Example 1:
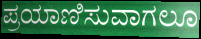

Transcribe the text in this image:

ಪ್ರಯಾಣಿಸುವಾಗಲೂ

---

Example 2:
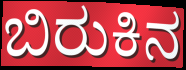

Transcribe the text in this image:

ಬಿರುಕಿನ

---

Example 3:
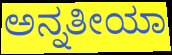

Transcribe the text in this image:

ಅನ್ನತೀಯಾ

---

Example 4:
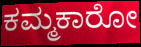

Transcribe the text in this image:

ಕಮ್ಮಕಾರೋ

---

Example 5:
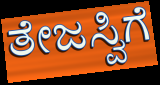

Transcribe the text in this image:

ತೇಜಸ್ವಿಗೆ